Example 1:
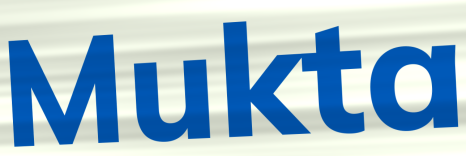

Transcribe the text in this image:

Mukta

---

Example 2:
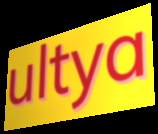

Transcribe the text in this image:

ultya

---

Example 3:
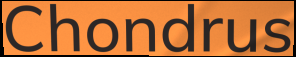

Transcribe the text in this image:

Chondrus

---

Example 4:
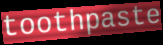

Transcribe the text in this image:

toothpaste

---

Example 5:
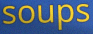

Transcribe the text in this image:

soups